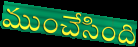
ముంచేసింది